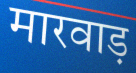
मारवाड़